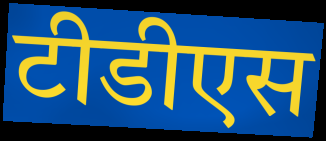
टीडीएस